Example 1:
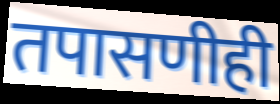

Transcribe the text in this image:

तपासणीही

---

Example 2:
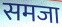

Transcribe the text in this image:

समजा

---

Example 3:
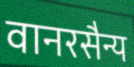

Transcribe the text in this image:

वानरसैन्य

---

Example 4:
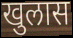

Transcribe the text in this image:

खुलास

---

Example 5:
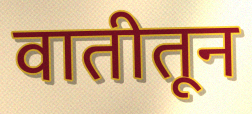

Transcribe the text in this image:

वातीतून